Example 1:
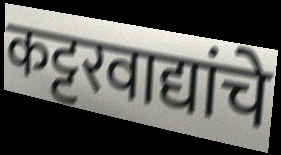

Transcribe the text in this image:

कट्टरवाद्यांचे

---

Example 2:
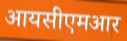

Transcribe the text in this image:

आयसीएमआर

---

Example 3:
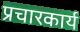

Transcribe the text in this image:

प्रचारकार्य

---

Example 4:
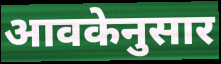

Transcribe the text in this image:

आवकेनुसार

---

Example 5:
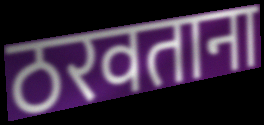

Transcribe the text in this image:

ठरवताना